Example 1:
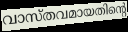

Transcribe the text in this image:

വാസ്തവമായതിന്റെ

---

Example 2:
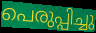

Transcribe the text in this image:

പെരുപ്പിച്ചു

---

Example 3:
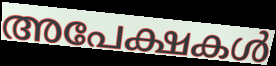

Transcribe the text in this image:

അപേക്ഷകൾ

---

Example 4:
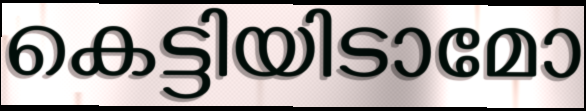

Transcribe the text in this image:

കെട്ടിയിടാമോ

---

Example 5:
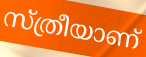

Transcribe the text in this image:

സ്ത്രീയാണ്